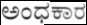
ಅಂಧಕಾರ